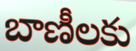
బాణీలకు